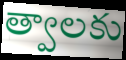
త్వాలకు